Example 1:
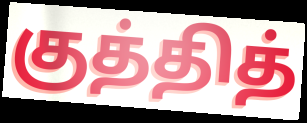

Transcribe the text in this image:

குத்தித்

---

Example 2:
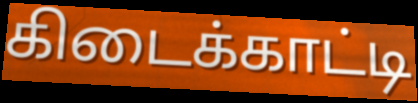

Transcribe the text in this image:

கிடைக்காட்டி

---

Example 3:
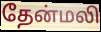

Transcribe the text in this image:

தேன்மலி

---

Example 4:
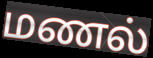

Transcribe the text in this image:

மணல்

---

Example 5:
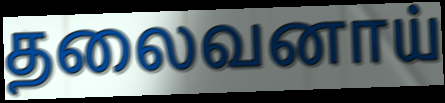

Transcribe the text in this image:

தலைவனாய்